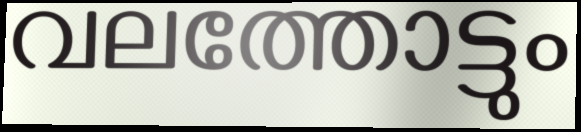
വലത്തോട്ടും